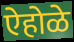
ऐहोळे